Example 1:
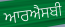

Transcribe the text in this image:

ਆਰਐਸਬੀ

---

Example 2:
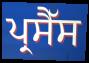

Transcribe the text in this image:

ਪ੍ਰਸੈੱਸ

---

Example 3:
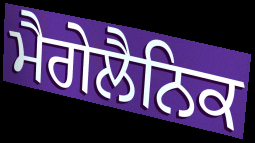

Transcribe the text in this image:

ਮੈਗੇਲੈਨਿਕ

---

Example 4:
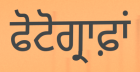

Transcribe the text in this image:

ਫੋਟੋਗ੍ਰਾਫ਼ਾਂ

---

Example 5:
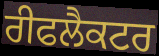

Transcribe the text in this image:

ਰੀਫਲੈਕਟਰ